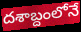
దశాబ్దంలోనే